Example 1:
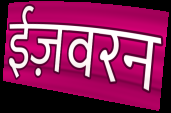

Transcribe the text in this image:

ईज़वरन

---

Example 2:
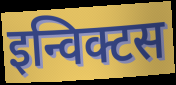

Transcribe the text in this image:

इन्विक्टस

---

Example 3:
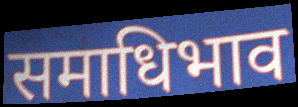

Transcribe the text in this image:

समाधिभाव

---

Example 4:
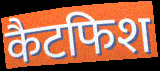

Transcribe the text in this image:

कैटफिश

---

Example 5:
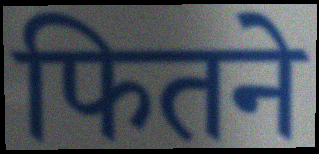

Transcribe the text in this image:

फितने